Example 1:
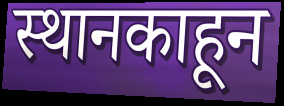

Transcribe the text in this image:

स्थानकाहून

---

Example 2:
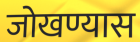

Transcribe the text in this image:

जोखण्यास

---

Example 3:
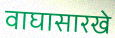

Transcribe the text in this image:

वाघासारखे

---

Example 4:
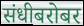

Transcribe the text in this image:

संधीबरोबर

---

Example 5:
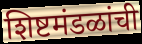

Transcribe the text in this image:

शिष्टमंडळांची